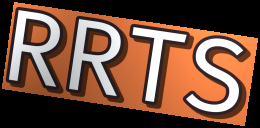
RRTS